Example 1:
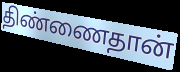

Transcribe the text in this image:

திண்ணைதான்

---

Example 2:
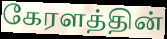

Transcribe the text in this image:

கேரளத்தின்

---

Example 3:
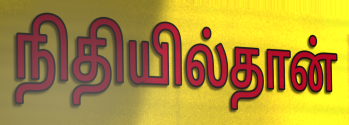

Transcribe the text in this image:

நிதியில்தான்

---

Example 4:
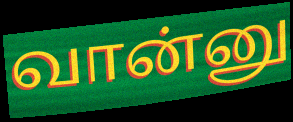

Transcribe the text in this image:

வான்னு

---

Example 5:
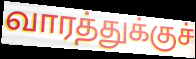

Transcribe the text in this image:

வாரத்துக்குச்